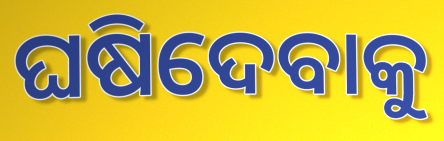
ଘଷିଦେବାକୁ